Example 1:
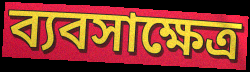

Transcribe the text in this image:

ব্যবসাক্ষেত্র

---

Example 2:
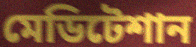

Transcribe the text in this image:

মেডিটেশান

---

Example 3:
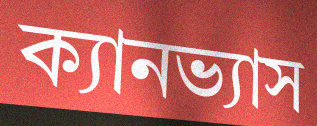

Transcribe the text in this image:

ক্যানভ্যাস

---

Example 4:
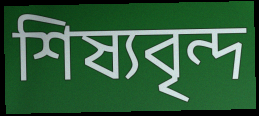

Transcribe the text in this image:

শিষ্যবৃন্দ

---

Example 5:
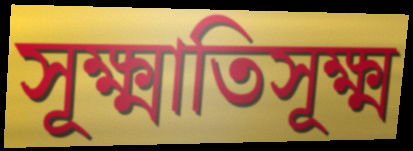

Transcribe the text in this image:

সূক্ষ্মাতিসূক্ষ্ম